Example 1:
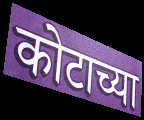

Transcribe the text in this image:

कोटाच्या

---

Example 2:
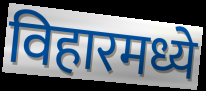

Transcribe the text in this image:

विहारमध्ये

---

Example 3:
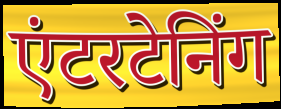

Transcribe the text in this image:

एंटरटेनिंग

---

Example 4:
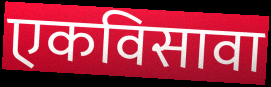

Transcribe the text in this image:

एकविसावा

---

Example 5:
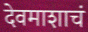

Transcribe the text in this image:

देवमाशाचं